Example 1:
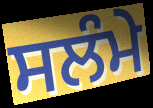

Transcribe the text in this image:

ਸਲੰਮੇ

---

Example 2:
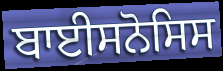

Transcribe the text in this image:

ਬਾਈਸਨੋਸਿਸ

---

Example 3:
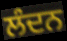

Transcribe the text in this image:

ਲੰਦਨ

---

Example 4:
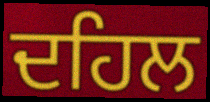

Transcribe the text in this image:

ਦਹਿਲ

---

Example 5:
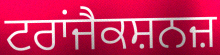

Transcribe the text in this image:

ਟਰਾਂਜੈਕਸ਼ਨਜ਼